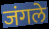
जंगले